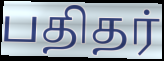
பதிதர்